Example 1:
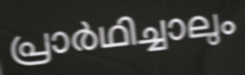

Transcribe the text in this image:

പ്രാർഥിച്ചാലും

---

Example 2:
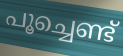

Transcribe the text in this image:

പൂച്ചെണ്ട്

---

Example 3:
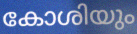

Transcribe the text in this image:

കോശിയും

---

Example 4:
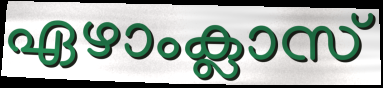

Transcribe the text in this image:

ഏഴാംക്ലാസ്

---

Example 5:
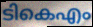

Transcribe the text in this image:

ടികെഎം